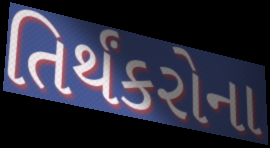
તિર્થંકરોના